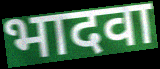
भादवा